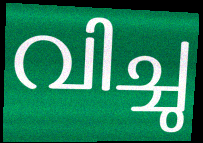
വിച്ചു